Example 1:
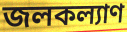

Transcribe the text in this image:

জলকল্যাণ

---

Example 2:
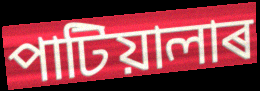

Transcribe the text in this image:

পাটিয়ালাৰ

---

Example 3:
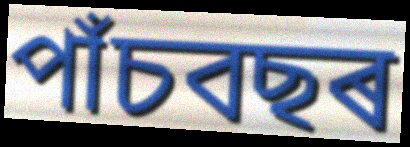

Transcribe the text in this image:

পাঁচবছৰ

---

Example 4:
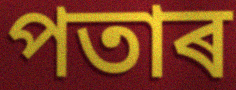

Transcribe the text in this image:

পতাৰ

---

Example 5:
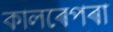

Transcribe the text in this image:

কালৰেপৰা